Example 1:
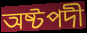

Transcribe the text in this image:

অষ্টপদী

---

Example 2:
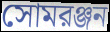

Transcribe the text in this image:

সোমরঞ্জন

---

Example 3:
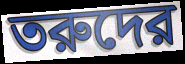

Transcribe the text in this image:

তরুদের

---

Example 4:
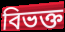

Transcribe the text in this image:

বিভক্ত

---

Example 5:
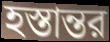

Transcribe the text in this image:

হস্তান্তর